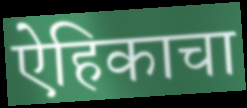
ऐहिकाचा